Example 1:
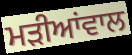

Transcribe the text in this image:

ਮੜੀਆਂਵਾਲ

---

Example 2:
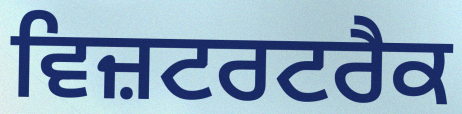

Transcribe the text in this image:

ਵਿਜ਼ਟਰਟਰੈਕ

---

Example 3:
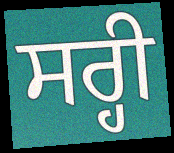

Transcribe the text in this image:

ਸਰ੍ਹੀ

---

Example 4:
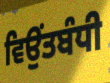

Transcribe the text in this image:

ਵਿਉਂਤਬੰਧੀ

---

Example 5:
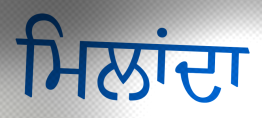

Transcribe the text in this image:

ਮਿਲਾਂਦਾ